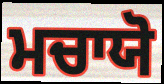
ਮਚਾਯੋ